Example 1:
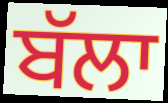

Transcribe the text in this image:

ਬੱਲਾ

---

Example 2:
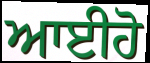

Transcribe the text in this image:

ਆਈਹੋ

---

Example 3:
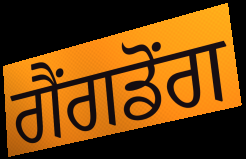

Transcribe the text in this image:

ਗੈਂਗਡੋਂਗ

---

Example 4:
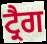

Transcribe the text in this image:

ਟ੍ਰੈਗ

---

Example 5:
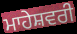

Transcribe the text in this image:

ਮਾਹੇਸ਼ਵਰੀ